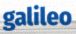
galileo